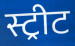
स्ट्रीट